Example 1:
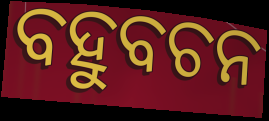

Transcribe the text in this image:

ବହୁବଚନ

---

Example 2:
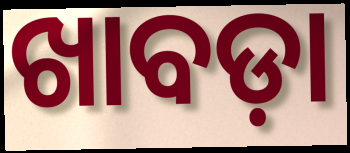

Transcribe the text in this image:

ଖାବଡ଼ା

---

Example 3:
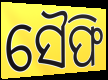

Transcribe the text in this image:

ସୈଫି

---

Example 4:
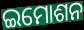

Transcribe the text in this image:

ଇମୋଶନ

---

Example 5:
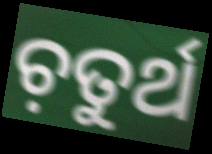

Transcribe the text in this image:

ଚ଼ତୁର୍ଥ